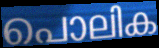
പൊലിക